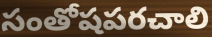
సంతోషపరచాలి